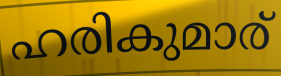
ഹരികുമാര്